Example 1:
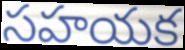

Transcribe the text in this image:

సహయక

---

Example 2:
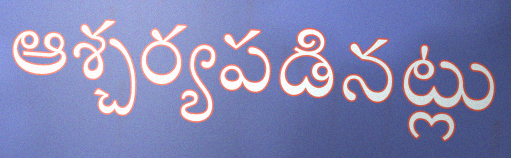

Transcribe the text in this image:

ఆశ్చర్యపడినట్లు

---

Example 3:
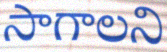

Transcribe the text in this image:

సాగాలని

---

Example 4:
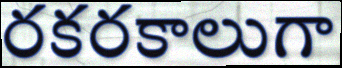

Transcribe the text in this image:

రకరకాలుగా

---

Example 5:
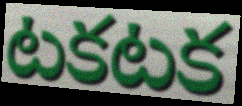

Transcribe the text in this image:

టకటక